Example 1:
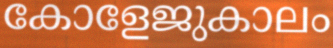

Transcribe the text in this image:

കോളേജുകാലം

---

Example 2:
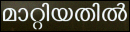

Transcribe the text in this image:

മാറ്റിയതിൽ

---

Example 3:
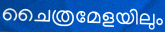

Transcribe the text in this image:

ചൈത്രമേളയിലും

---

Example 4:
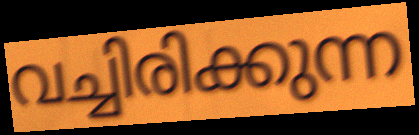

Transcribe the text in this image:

വച്ചിരിക്കുന്ന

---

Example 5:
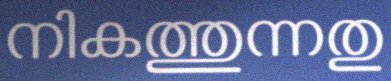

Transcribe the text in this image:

നികത്തുന്നതു